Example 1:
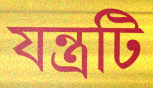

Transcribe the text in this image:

যন্ত্রটি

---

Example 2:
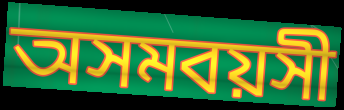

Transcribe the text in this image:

অসমবয়সী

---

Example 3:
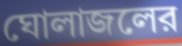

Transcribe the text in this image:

ঘোলাজলের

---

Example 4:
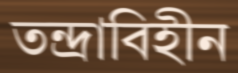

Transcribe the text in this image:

তন্দ্রাবিহীন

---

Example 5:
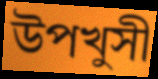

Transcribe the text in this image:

উপখুসী